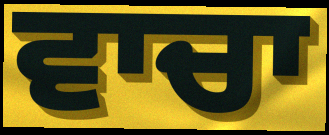
ਵਾਚਾ